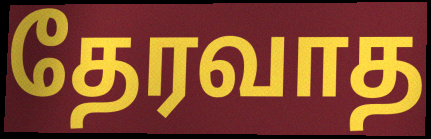
தேரவாத